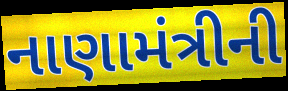
નાણામંત્રીની